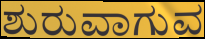
ಶುರುವಾಗುವ